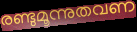
രണ്ടുമൂന്നുതവണ